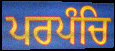
ਪਰਪੰਚਿ